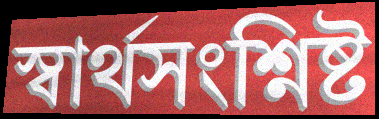
স্বার্থসংশ্নিষ্ট